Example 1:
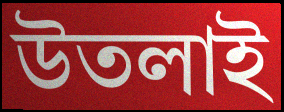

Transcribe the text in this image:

উতলাই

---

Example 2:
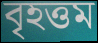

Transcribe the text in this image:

বৃহত্তম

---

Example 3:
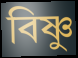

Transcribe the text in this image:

বিষ্ণু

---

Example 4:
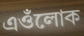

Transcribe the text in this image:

এওঁলোক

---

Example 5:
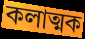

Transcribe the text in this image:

কলাত্মক